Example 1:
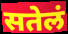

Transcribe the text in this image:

सतेलं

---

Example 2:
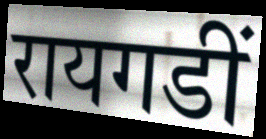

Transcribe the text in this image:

रायगडीं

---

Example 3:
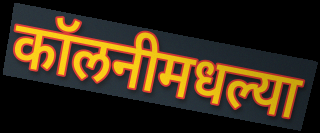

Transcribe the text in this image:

कॉलनीमधल्या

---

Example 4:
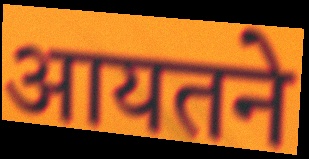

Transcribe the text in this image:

आयतने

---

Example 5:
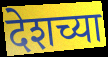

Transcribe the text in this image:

देशच्या